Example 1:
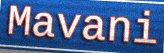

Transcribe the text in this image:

Mavani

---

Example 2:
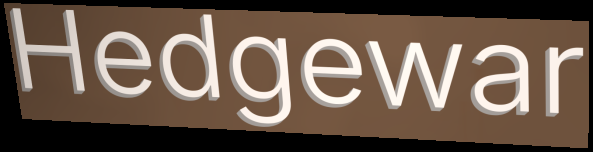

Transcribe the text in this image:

Hedgewar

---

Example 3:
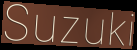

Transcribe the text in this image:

Suzuki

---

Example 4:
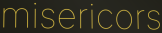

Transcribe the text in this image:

misericors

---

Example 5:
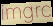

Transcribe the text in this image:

imgrc